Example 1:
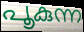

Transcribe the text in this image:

പൂകുന്ന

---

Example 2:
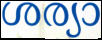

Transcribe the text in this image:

ശര്യാ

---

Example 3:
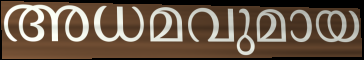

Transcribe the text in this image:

അധമവുമായ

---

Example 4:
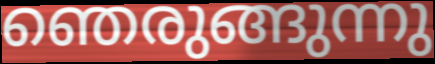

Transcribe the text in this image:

ഞെരുങ്ങുന്നു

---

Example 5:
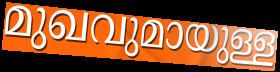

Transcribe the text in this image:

മുഖവുമായുള്ള